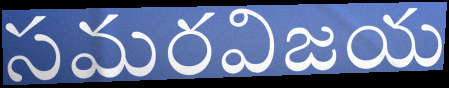
సమరవిజయ